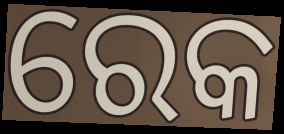
ରେକ